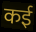
कई